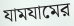
যামযামের